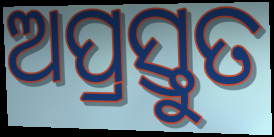
ଅପ୍ରସ୍ତୁତ